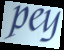
pey